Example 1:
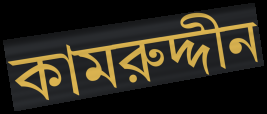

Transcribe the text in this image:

কামরুদ্দীন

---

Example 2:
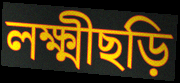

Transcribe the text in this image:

লক্ষ্মীছড়ি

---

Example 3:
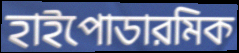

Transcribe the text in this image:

হাইপোডারমিক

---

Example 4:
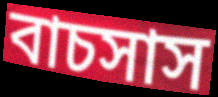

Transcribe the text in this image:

বাচসাস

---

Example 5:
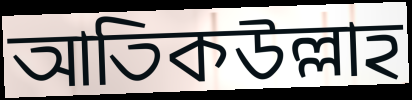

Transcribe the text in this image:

আতিকউল্লাহ